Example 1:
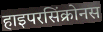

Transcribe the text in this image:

हाइपरसिंक्रोनस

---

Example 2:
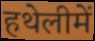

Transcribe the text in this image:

हथेलीमें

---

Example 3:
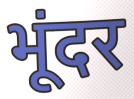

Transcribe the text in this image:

भूंदर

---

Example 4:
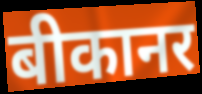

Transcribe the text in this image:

बीकानर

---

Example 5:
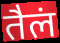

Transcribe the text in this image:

तैलं